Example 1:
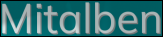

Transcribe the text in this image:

Mitalben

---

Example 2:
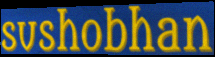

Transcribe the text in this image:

sushobhan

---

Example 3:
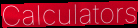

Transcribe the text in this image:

Calculators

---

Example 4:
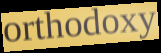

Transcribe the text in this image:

orthodoxy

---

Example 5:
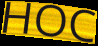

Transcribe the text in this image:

HOC